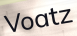
Voatz